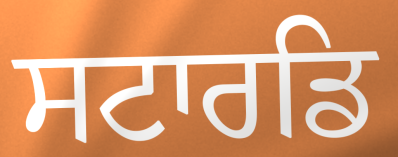
ਸਟਾਰਡਿ